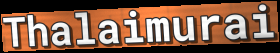
Thalaimurai